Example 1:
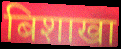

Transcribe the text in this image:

बिशाखा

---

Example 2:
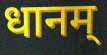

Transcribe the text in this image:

धानम्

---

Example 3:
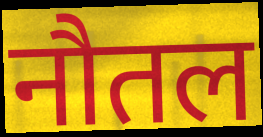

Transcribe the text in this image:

नौतल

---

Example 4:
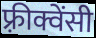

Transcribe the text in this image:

फ़्रीक्वेंसी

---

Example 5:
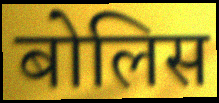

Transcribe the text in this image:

बोलिस